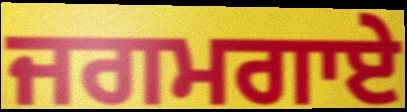
ਜਗਮਗਾਏ